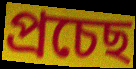
প্ৰচেছ